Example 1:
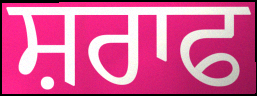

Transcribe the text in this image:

ਸ਼ਰਾਫ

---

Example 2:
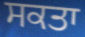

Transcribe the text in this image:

ਸਕਤਾ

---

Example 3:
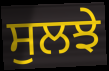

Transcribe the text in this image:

ਸੁਲਝੇ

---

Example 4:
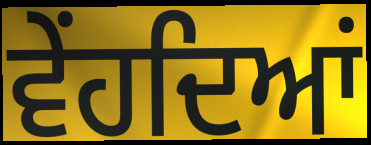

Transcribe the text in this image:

ਵੇਂਹਦਿਆਂ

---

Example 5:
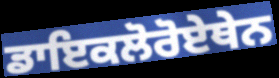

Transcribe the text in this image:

ਡਾਇਕਲੋਰੋਏਥੇਨ